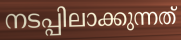
നടപ്പിലാക്കുന്നത്